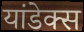
यांडेक्स